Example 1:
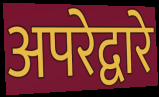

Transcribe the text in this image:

अपरेद्वारे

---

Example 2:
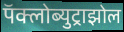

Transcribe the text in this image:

पॅक्लोब्युट्राझोल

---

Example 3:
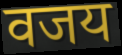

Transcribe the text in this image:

वजय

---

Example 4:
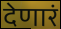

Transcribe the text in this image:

देणारं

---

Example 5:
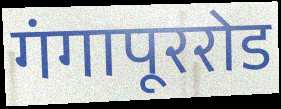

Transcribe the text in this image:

गंगापूररोड